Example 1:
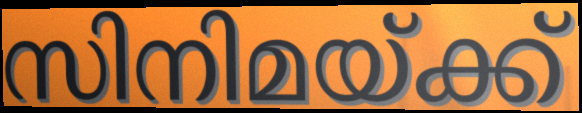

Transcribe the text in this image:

സിനിമയ്ക്ക്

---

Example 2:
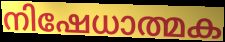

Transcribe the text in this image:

നിഷേധാത്മക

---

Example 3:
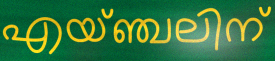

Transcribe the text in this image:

എയ്ഞ്ചലിന്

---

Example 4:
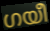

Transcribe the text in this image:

ഗയീ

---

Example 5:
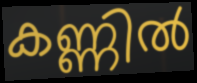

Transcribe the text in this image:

കണ്ണിൽ